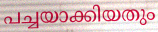
പച്ചയാക്കിയതും